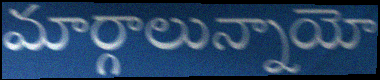
మార్గాలున్నాయో